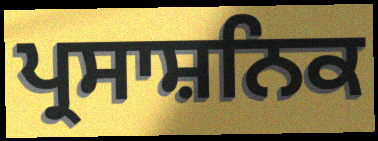
ਪ੍ਰਸਾਸ਼ਨਿਕ